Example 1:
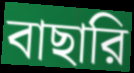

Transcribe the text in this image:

বাছারি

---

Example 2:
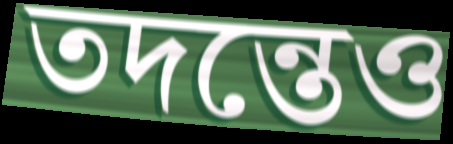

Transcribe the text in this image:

তদন্তেও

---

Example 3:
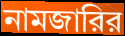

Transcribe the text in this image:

নামজারির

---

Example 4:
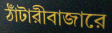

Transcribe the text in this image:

ঠাঁটারীবাজারে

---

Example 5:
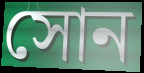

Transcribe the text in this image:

সোন